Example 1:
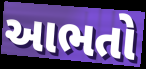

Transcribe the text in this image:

આભતો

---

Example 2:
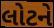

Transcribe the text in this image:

લોટને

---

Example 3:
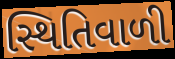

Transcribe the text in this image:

સ્થિતિવાળી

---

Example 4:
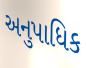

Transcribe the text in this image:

અનુપાધિક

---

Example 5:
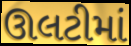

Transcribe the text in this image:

ઊલટીમાં